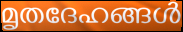
മൃതദേഹങ്ങൾ